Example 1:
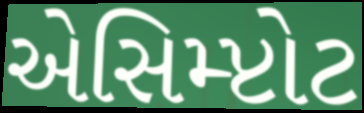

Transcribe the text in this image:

એસિમ્પ્ટોટ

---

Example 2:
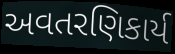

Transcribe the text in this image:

અવતરણિકાર્ય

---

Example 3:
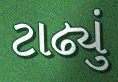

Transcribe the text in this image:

ટાઢ્યું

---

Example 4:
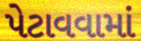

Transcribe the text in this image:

પેટાવવામાં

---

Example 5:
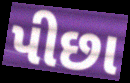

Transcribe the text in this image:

પીછા